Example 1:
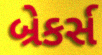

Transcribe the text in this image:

બ્રેકર્સ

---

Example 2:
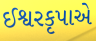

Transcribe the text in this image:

ઈશ્વરકૃપાએ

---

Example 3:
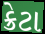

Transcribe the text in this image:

ક્રેટા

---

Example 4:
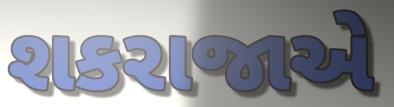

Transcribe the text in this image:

શકરાજાએ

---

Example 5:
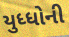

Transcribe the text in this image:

યુધ્ધોની